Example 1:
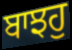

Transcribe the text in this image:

ਬਾਝਹੁ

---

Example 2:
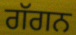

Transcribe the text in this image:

ਗੱਗਨ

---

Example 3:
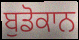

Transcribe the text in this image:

ਬੁਡੋਕਾਨ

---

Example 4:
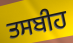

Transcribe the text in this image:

ਤਸਬੀਹ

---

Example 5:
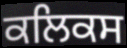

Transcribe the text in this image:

ਕਲਿਕਸ